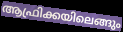
ആഫ്രിക്കയിലെങ്ങും